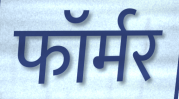
फॉर्मर